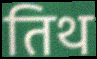
तिथ